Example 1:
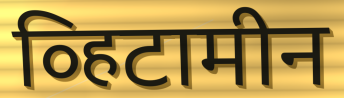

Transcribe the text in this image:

व्हिटामीन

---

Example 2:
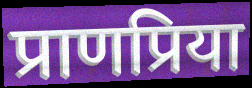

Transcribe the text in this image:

प्राणप्रिया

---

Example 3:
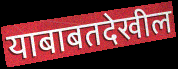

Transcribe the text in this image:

याबाबतदेखील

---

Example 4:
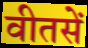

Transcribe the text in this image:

वीतसें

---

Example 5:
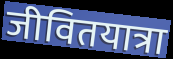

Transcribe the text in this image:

जीवितयात्रा